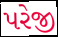
પરેજી